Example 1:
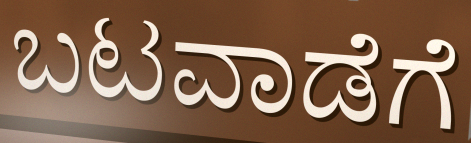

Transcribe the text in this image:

ಬಟವಾಡೆಗೆ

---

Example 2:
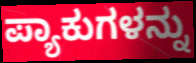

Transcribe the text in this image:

ಪ್ಯಾಕುಗಳನ್ನು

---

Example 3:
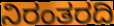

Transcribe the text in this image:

ನಿರಂತರದಿ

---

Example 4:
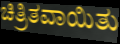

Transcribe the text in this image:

ಚಿತ್ರಿತವಾಯಿತು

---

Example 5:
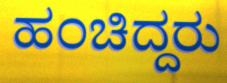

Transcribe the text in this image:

ಹಂಚಿದ್ದರು